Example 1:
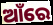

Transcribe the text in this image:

ଆଁରେ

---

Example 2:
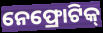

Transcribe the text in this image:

ନେଫ୍ରୋଟିକ୍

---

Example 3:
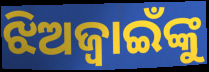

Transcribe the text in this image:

ଝିଅଜ୍ୱାଇଁଙ୍କୁ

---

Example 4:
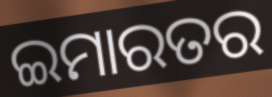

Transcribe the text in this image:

ଇମାରତର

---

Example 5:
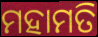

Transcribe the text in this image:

ମହାମତି